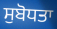
ਸੁਬੋਧਤਾ